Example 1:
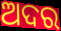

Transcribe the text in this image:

ଅଦର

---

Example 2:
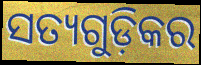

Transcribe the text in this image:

ସତ୍ୟଗୁଡ଼ିକର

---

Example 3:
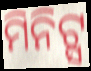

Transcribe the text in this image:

ମିନିଟ୍ସ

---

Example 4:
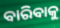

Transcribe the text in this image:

ବାରିବାକୁ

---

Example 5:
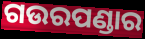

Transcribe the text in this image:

ଗଉରପଣ୍ଡାର